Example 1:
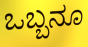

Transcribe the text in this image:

ಒಬ್ಬನೂ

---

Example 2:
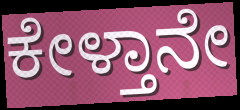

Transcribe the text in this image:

ಕೇಳ್ತಾನೇ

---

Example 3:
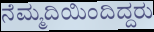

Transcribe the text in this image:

ನೆಮ್ಮದಿಯಿಂದಿದ್ದರು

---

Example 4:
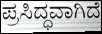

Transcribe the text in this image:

ಪ್ರಸಿದ್ಧವಾಗಿದೆ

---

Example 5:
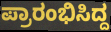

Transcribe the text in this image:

ಪ್ರಾರಂಭಿಸಿದ್ದ